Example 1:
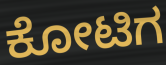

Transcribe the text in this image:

ಕೋಟಿಗ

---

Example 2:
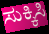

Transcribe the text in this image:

ಸುಕ್ಕಿಸಿ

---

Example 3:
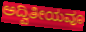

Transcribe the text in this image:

ಅದ್ವಿತೀಯವೂ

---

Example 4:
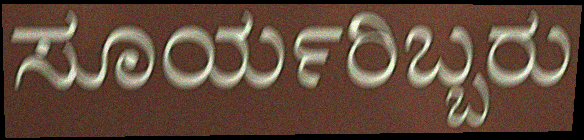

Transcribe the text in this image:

ಸೂರ್ಯರಿಬ್ಬರು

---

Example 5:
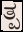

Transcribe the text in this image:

ತ್ಪ